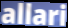
allari